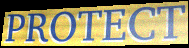
PROTECT